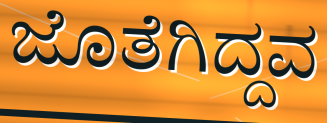
ಜೊತೆಗಿದ್ದವ